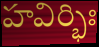
హవిర్భిః